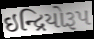
ઇન્દ્રિયોરૂપ